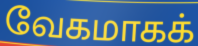
வேகமாகக்